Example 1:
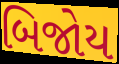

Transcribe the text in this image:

બિજોય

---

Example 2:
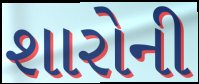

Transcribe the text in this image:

શારોની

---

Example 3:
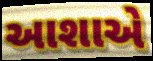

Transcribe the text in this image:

આશાએ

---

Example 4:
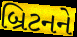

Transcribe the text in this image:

બ્રિટનને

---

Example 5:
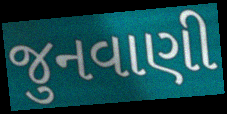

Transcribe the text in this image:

જુનવાણી